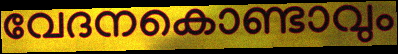
വേദനകൊണ്ടാവും